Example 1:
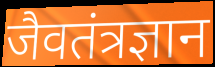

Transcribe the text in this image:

जैवतंत्रज्ञान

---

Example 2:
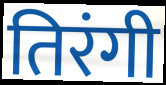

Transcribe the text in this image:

तिरंगी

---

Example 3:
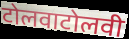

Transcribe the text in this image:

टोलवाटोलवी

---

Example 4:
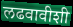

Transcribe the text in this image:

लढवावीशी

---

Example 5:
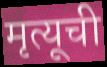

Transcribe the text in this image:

मृत्यूची